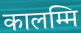
कालम्मि